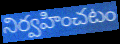
నిర్వహించటం